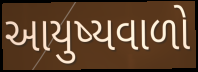
આયુષ્યવાળો